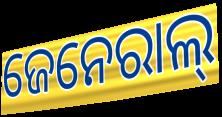
ଜେନେରାଲ୍